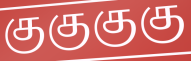
குகுகுகு